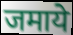
जमाये